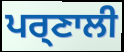
ਪਰ੍ਣਾਲੀ